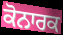
ਕੋਨਾਰਕ